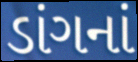
ડાંગનાં